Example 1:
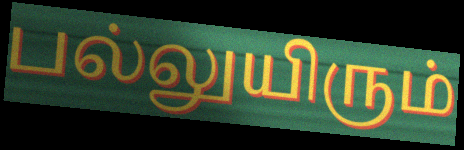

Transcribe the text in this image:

பல்லுயிரும்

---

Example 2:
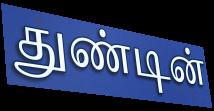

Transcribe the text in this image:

துண்டின்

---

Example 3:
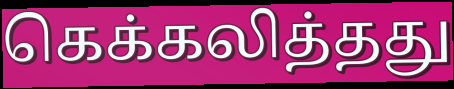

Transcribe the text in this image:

கெக்கலித்தது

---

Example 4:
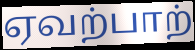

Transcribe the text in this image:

ஏவற்பாற்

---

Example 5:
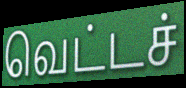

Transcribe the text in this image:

வெட்டச்